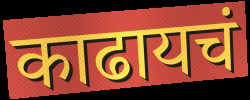
काढायचं